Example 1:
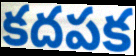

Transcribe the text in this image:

కదపక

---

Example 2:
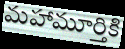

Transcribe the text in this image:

మహామూర్తికి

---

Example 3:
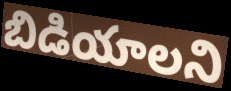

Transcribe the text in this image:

బిడియాలని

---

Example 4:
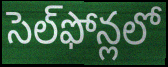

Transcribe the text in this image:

సెల్‌ఫోన్లలో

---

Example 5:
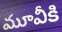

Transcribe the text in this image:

మూవీకి